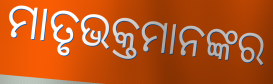
ମାତୃଭକ୍ତମାନଙ୍କର